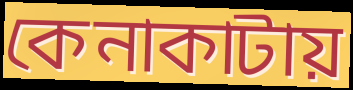
কেনাকাটায়